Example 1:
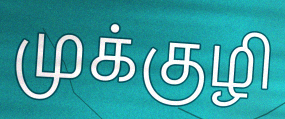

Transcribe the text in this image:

முக்குழி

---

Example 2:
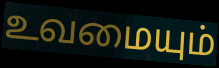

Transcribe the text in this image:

உவமையும்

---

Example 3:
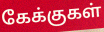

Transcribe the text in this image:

கேக்குகள்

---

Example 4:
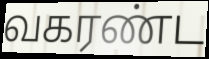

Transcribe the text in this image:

வகரண்ட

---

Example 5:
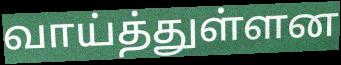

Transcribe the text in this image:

வாய்த்துள்ளன